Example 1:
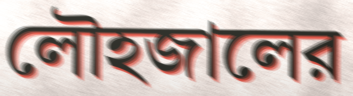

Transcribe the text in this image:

লৌহজালের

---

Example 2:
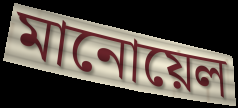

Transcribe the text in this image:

মানোয়েল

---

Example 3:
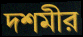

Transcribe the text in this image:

দশমীর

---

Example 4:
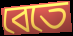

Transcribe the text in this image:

বেতে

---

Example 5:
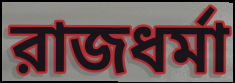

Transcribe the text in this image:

রাজধর্মা